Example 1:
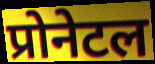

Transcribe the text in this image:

प्रोनेटल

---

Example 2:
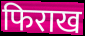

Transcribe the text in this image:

फिराख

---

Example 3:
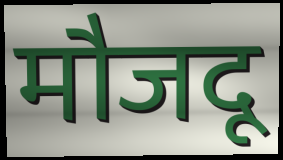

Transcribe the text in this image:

मौजदू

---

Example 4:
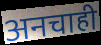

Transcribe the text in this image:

अनचाही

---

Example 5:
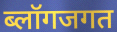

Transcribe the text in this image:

ब्लॉगजगत